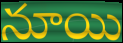
నూయి